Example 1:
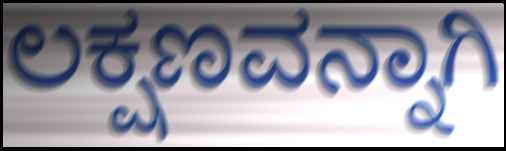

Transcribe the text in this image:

ಲಕ್ಷಣವನ್ನಾಗಿ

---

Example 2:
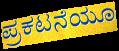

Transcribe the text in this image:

ಪ್ರಕಟನೆಯೂ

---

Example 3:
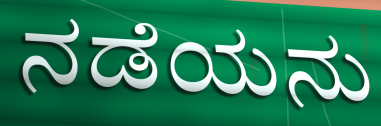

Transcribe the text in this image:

ನಡೆಯನು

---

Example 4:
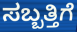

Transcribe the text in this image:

ಸಬ್ಬತ್ತಿಗೆ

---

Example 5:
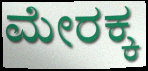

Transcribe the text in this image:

ಮೇರಕ್ಕ